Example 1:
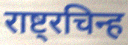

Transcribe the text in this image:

राष्ट्रचिन्ह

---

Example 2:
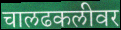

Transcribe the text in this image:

चालढकलीवर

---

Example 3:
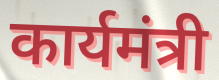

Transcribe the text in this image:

कार्यमंत्री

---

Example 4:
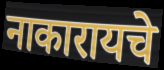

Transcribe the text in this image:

नाकारायचे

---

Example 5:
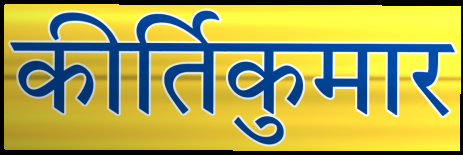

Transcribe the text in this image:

कीर्तिकुमार